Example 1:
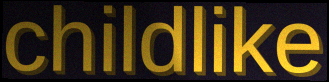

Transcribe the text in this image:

childlike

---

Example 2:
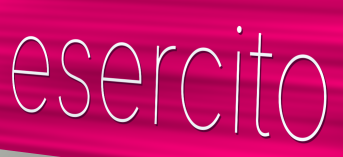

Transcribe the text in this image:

esercito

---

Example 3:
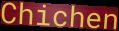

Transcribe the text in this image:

Chichen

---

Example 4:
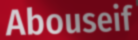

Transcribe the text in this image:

Abouseif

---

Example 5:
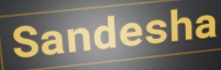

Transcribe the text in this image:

Sandesha